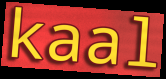
kaal